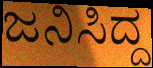
ಜನಿಸಿದ್ದ